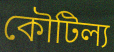
কৌটিল্য